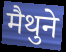
मैथुने